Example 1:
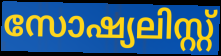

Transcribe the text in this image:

സോഷ്യലിസ്റ്റ്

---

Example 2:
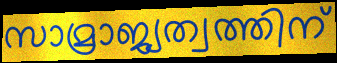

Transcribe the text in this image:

സാമ്രാജ്യത്വത്തിന്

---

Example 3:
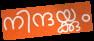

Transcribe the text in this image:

നിന്ദയ്ക്കും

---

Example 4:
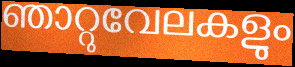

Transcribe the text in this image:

ഞാറ്റുവേലകളും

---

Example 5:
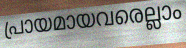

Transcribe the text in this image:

പ്രായമായവരെല്ലാം